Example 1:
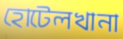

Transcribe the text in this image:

হোটেলখানা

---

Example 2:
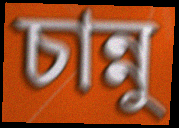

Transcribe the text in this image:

চান্নু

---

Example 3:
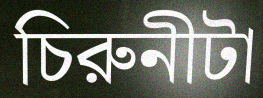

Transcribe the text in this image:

চিরুনীটা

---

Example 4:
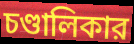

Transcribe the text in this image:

চণ্ডালিকার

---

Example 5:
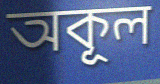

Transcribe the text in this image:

অকূল